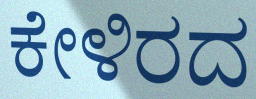
ಕೇಳಿರದ